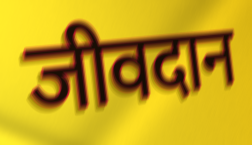
जीवदान